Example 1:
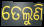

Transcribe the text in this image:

ତେଲୁଣି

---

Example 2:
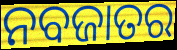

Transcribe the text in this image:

ନବଜାତର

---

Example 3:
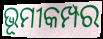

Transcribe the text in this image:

ଭୂମୀକମ୍ପର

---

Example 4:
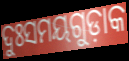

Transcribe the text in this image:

ଦୁଃସମୟଗୁଡ଼ାକ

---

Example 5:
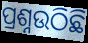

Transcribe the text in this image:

ପ୍ରଶ୍ନଉଠିଛି